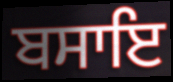
ਬਸਾਇ